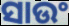
ସାଉଂ